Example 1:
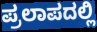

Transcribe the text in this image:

ಪ್ರಲಾಪದಲ್ಲಿ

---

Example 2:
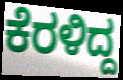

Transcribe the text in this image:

ಕೆರಳಿದ್ದ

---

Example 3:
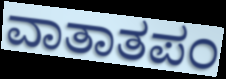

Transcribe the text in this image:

ವಾತಾತಪಂ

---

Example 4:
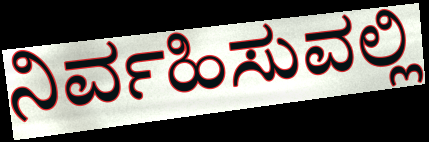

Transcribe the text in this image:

ನಿರ್ವಹಿಸುವಲ್ಲಿ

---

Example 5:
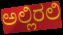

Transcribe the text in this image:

ಅಲ್ಲಿರಲಿ